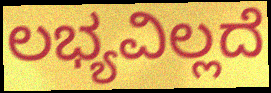
ಲಭ್ಯವಿಲ್ಲದೆ